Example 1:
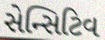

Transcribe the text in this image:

સેન્સિટિવ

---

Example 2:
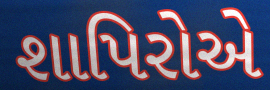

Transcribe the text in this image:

શાપિરોએ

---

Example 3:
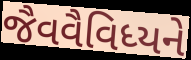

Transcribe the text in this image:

જૈવવૈવિધ્યને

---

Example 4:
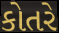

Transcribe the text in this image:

કોતરે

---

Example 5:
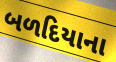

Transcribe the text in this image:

બળદિયાના